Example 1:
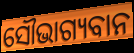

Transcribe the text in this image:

ସୌଭାଗ୍ୟବାନ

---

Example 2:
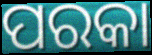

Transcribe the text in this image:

ପରକା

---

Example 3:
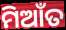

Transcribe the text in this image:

ମିଆଁତ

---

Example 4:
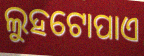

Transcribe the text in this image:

ଲୁହଟୋପାଏ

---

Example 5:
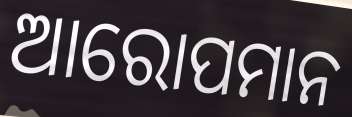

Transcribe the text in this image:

ଆରୋପମାନ